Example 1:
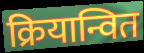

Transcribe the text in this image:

क्रियान्वित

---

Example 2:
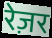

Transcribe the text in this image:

रेज़र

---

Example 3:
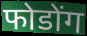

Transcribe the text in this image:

फोडोंग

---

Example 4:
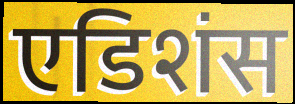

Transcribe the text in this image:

एडिशंस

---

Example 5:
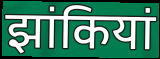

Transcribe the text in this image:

झांकियां